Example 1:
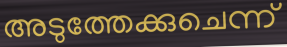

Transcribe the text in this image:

അടുത്തേക്കുചെന്ന്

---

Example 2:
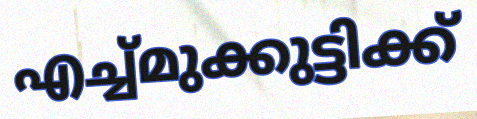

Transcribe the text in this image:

എച്ച്മുക്കുട്ടിക്ക്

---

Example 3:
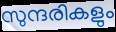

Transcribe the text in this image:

സുന്ദരികളും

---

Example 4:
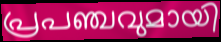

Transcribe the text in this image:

പ്രപഞ്ചവുമായി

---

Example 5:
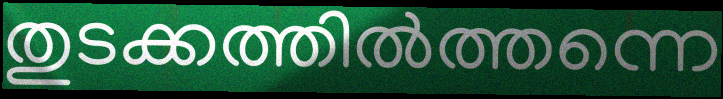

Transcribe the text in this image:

തുടക്കത്തിൽത്തന്നെ